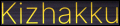
Kizhakku